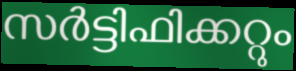
സർട്ടിഫിക്കറ്റും